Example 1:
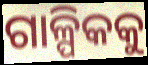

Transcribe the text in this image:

ଗାଳ୍ପିକକୁ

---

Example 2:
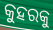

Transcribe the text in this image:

କୁହରକୁ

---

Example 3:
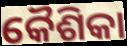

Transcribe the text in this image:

କୈଶିକା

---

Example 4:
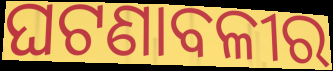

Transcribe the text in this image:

ଘଟଣାବଳୀର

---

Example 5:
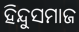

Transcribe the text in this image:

ହିନ୍ଦୁସମାଜ